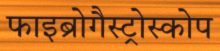
फाइब्रोगैस्ट्रोस्कोप